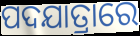
ପଦଯାତ୍ରାରେ